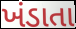
ખંડાતા